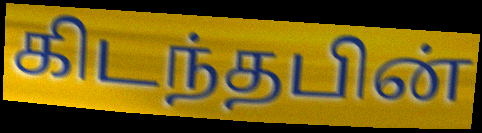
கிடந்தபின்